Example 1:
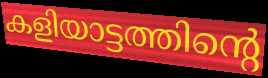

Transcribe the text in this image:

കളിയാട്ടത്തിന്റെ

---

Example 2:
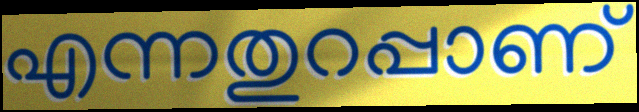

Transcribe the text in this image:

എന്നതുറപ്പാണ്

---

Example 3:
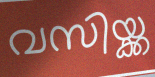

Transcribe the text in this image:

വസിയ്ക്ക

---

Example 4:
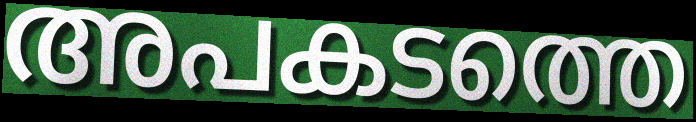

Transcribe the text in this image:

അപകടത്തെ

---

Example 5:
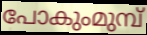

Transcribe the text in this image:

പോകുംമുമ്പ്